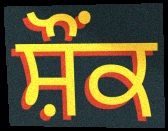
ਸ਼ੌੰਕ